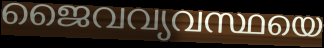
ജൈവവ്യവസ്ഥയെ